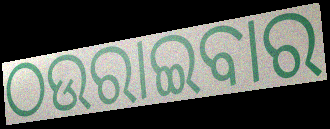
ଠଉରାଇବାର